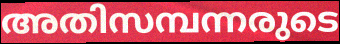
അതിസമ്പന്നരുടെ